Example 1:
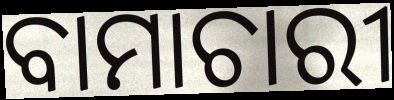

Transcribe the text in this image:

ବାମାଚାରୀ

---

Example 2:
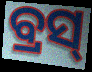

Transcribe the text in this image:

ବ୍ରସ୍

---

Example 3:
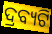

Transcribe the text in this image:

ଦ୍ରବ୍ୟଟି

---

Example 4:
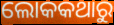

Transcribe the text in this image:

ଲୋକକଥାରୁ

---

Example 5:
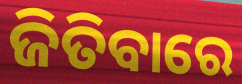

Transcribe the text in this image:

ଜିତିବାରେ